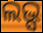
ଲଭ୍ସ